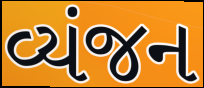
વ્યંજન